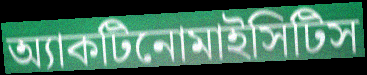
অ্যাকটিনোমাইসিটিস